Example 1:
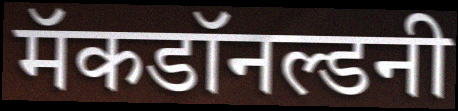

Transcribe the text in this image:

मॅकडॉनल्डनी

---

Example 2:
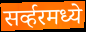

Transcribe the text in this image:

सर्व्हरमध्ये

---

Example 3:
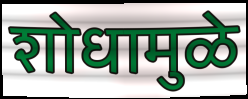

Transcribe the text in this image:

शोधामुळे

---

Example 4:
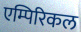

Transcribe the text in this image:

एम्पिरिकल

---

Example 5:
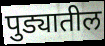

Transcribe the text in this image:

पुड्यातील